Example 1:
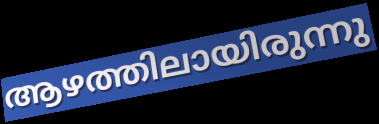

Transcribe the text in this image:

ആഴത്തിലായിരുന്നു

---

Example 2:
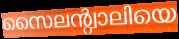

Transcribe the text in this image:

സൈലന്റ്വാലിയെ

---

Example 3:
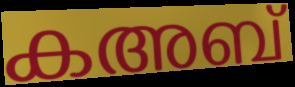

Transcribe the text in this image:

കഅബ്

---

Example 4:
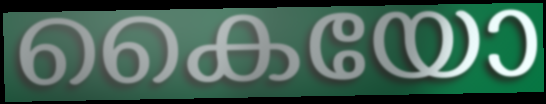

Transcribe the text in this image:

കൈയോ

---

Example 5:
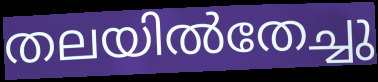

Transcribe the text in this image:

തലയിൽതേച്ചു